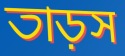
তাড়স